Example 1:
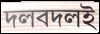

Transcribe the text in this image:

দলবদলই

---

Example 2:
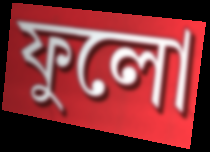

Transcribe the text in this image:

ফুলো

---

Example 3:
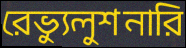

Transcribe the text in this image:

রেভ্যুলুশনারি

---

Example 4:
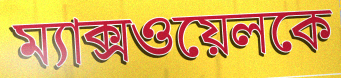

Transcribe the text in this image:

ম্যাক্সওয়েলকে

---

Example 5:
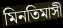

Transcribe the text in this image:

মিনতিমাসী